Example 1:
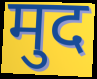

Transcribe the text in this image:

मुद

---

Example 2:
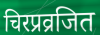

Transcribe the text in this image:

चिरप्रव्रजित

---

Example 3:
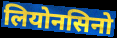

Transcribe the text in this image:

लियोनसिनो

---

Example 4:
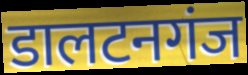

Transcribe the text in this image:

डालटनगंज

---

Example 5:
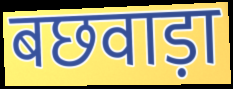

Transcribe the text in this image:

बछवाड़ा